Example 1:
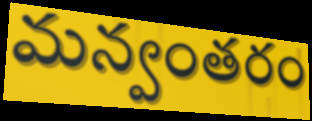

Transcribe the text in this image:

మన్వంతరం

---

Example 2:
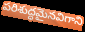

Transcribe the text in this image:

పరిశుద్ధమైనవిగాని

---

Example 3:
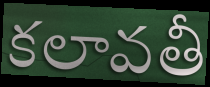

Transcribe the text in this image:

కలావతీ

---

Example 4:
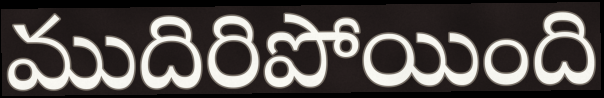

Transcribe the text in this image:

ముదిరిపోయింది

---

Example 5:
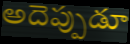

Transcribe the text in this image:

అదెప్పుడూ